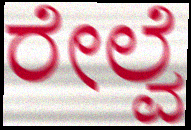
ರೇಲ್ವೆ